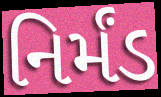
નિર્મંડ